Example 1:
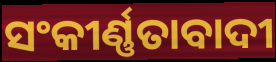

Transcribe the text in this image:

ସଂକୀର୍ଣ୍ଣତାବାଦୀ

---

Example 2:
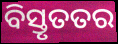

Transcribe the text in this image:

ବିସ୍ତୃତତର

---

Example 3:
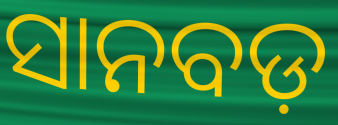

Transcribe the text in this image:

ସାନବଡ଼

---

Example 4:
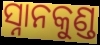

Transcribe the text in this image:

ସ୍ନାନକୁଣ୍ଡ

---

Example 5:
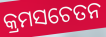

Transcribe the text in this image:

କ୍ରମସଚେତନ